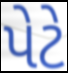
પેટે